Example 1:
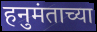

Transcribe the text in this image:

हनुमंताच्या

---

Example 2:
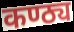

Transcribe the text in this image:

कण्ठ्य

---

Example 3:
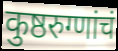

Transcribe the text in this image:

कुष्ठरुग्णांचं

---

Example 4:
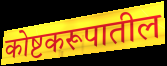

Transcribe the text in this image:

कोष्टकरूपातील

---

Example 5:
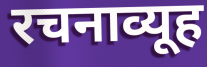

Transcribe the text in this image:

रचनाव्यूह